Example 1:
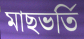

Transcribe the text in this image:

মাছভর্তি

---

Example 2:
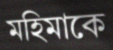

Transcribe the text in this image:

মহিমাকে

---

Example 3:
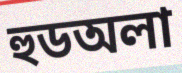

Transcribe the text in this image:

হুডঅলা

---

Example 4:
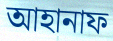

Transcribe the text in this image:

আহানাফ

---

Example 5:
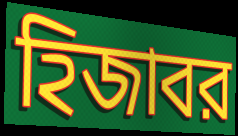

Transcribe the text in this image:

হিজাবর